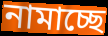
নামাচ্ছে